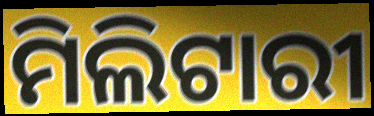
ମିଲିଟାରୀ